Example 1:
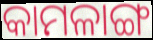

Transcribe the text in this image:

କାମଳାଙ୍ଗ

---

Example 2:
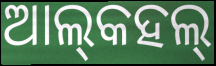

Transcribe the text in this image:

ଆଲ୍‌କହଲ୍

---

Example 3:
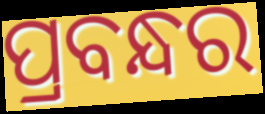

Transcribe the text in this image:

ପ୍ରବନ୍ଧର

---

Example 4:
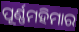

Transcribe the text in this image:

ପୂର୍ଣ୍ଣମହିମାର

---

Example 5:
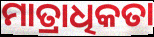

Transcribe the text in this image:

ମାତ୍ରାଧିକତା